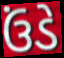
ઉંડે